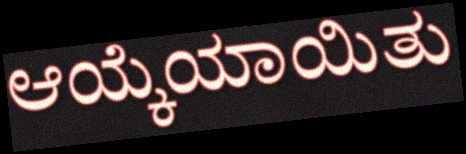
ಆಯ್ಕೆಯಾಯಿತು